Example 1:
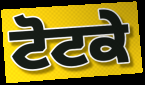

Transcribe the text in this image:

ਟੋਟਕੇ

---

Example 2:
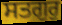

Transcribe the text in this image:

ਸਤਗੁਰੁ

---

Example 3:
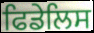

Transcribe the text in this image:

ਫਿਡੇਲਿਸ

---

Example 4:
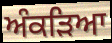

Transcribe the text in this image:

ਅੰਕੜਿਆ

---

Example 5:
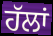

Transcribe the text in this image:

ਹੱਲਾਂ